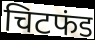
चिटफंड